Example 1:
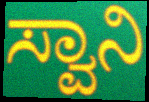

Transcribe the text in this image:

ಸ್ವಾನಿ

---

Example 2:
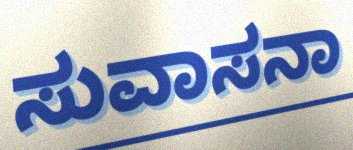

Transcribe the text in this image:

ಸುವಾಸನಾ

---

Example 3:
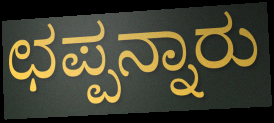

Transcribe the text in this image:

ಛಪ್ಪನ್ನಾರು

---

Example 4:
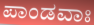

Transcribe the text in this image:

ಪಾಂಡವಾಃ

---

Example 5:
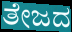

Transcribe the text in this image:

ತೇಜದ